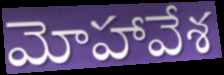
మోహావేశ